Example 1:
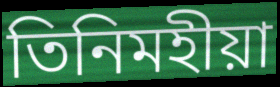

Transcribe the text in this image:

তিনিমহীয়া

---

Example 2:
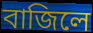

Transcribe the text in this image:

বাজিলে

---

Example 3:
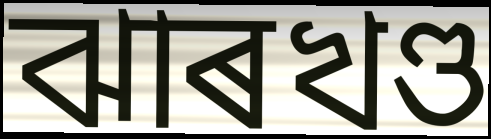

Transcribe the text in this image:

ঝাৰখণ্ড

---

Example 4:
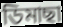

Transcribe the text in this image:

ডিমাছা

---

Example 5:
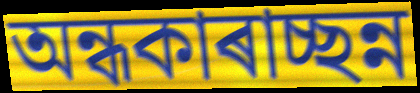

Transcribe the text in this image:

অন্ধকাৰাচ্ছন্ন